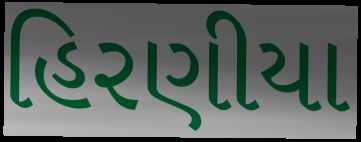
હિરણીયા